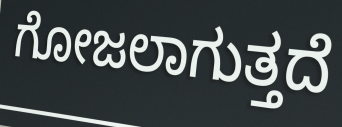
ಗೋಜಲಾಗುತ್ತದೆ